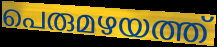
പെരുമഴയത്ത്